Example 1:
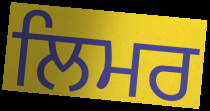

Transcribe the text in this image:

ਲਿਮਰ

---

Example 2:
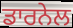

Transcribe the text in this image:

ਡਾਰਨੇਲ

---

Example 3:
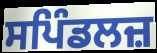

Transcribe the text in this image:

ਸਪਿੰਡਲਜ਼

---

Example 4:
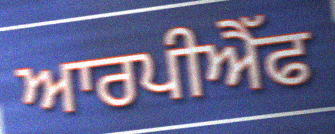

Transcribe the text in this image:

ਆਰਪੀਐੱਫ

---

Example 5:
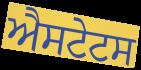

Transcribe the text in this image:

ਐਸਟੇਟਸ